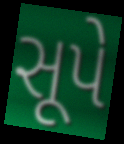
સૂપે